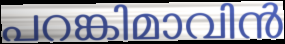
പറങ്കിമാവിൻ